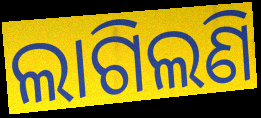
ଲାଗିଲଣି